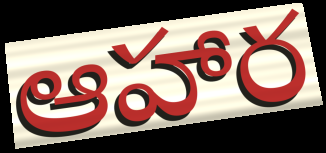
ఆహార